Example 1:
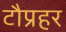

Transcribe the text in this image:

टौप्रहर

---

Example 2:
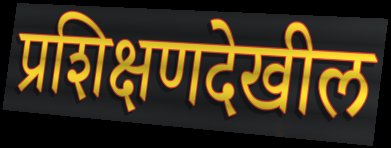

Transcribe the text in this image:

प्रशिक्षणदेखील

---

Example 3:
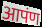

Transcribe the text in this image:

आपंण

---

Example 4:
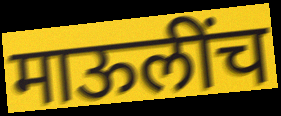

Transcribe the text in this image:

माऊलींच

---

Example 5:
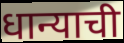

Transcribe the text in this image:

धान्याची